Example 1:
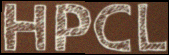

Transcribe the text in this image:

HPCL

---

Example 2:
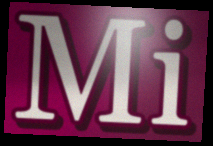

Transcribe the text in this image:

Mi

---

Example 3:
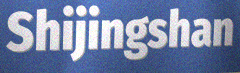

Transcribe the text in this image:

Shijingshan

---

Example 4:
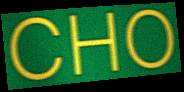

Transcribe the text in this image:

CHO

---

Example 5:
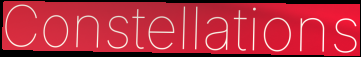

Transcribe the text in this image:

Constellations